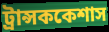
ট্রান্সককেশাস